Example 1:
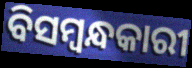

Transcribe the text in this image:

ବିସମ୍ବନ୍ଧକାରୀ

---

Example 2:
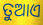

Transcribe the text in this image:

ତୁଆଏ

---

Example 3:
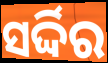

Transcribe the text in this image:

ସର୍ଦ୍ଦିର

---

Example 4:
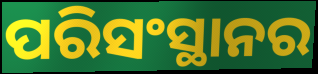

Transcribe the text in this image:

ପରିସଂସ୍ଥାନର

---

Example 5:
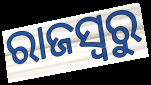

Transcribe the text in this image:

ରାଜସ୍ୱରୁ